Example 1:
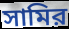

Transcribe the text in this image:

সামির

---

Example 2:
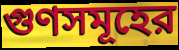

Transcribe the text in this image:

গুণসমূহের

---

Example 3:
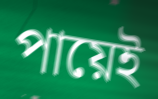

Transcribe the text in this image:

পায়েই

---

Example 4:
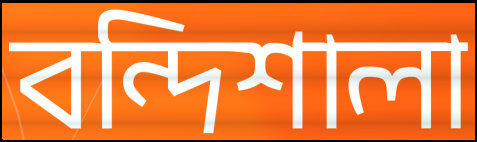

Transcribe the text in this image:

বন্দিশালা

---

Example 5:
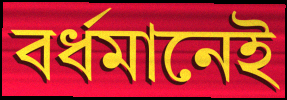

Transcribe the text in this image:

বর্ধমানেই